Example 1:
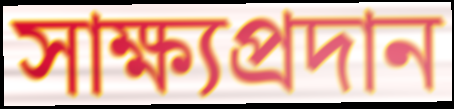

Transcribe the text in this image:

সাক্ষ্যপ্রদান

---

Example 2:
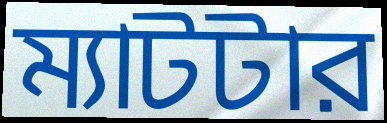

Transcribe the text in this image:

ম্যাটটার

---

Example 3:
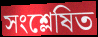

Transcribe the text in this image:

সংশ্লেষিত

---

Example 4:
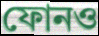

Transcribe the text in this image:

ফোনও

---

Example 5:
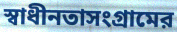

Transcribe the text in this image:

স্বাধীনতাসংগ্রামের